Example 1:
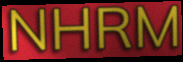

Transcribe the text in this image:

NHRM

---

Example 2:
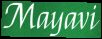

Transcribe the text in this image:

Mayavi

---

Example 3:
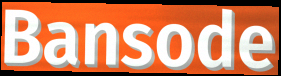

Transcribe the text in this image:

Bansode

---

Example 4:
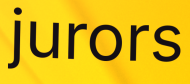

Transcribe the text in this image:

jurors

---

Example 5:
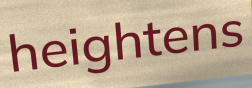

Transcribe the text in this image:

heightens